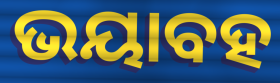
ଭୟାବହ